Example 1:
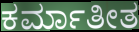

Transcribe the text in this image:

ಕರ್ಮಾತೀತ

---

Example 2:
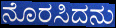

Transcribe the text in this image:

ನೊರಸಿದನು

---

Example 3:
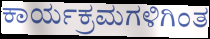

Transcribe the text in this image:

ಕಾರ್ಯಕ್ರಮಗಳಿಗಿಂತ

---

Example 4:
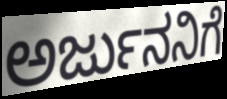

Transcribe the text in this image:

ಅರ್ಜುನನಿಗೆ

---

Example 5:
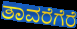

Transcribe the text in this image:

ತಾವರೆಗೆರೆ